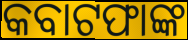
କବାଟଫାଙ୍କ